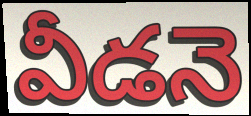
వీడనె